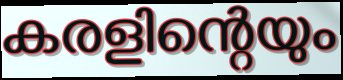
കരളിന്റെയും